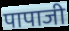
पापाजी